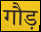
गौड़